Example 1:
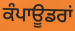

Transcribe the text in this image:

ਕੰਪਾਊਡਰਾਂ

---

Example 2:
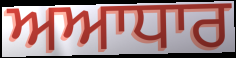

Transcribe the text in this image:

ਅਆਧਾਰ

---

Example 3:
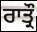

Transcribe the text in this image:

ਰਾਤ੍ਰੌ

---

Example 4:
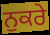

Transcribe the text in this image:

ਨੁਕਰੇ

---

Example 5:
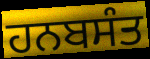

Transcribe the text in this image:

ਹਨਬਸੰਤ